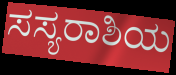
ಸಸ್ಯರಾಶಿಯ